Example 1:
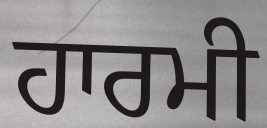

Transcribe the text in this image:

ਹਾਰਮੀ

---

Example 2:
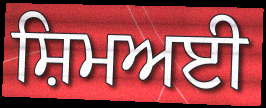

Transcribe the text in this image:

ਸ਼ਿਮਅਈ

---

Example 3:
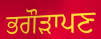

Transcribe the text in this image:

ਭਗੌੜਾਪਣ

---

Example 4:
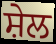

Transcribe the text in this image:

ਸ਼ੇਲ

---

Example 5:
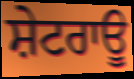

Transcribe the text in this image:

ਸ਼ੇਟਰਾਊ